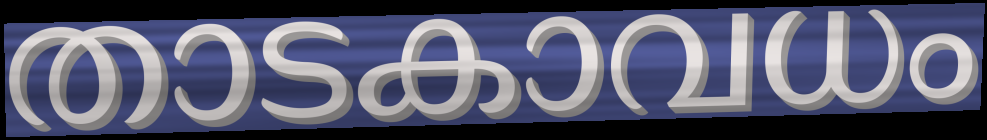
താടകാവധം